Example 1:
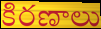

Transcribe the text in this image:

కిరణాలు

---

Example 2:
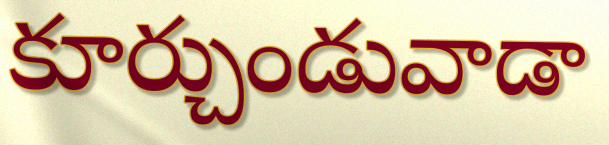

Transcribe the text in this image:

కూర్చుండువాడా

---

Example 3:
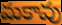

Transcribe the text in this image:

మకావు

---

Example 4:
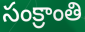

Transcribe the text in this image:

సంక్రాంతి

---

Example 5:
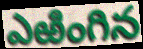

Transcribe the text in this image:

ఎఱింగిన